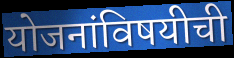
योजनांविषयीची